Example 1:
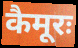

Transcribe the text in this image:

कैमूरः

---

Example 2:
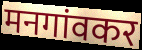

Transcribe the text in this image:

मनगांवकर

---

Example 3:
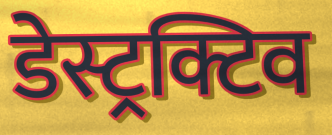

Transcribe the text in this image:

डेस्ट्रक्टिव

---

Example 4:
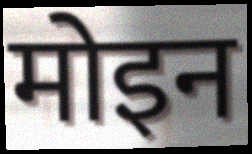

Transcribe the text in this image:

मोइन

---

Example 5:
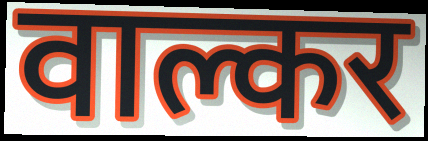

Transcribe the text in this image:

वाल्कर